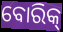
ବୋରିକ୍